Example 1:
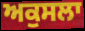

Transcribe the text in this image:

ਅਕੁਸਲਾ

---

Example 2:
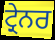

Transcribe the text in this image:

ਟ੍ਰੇਨਰ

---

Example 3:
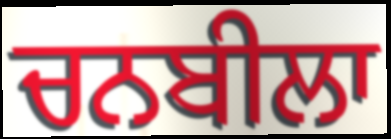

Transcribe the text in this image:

ਚਨਬੀਲਾ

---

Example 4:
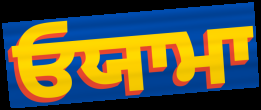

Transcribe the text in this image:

ਓਯਾਮਾ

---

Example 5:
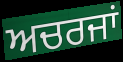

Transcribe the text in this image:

ਅਚਰਜਾਂ